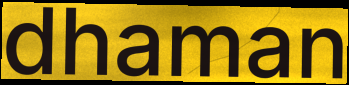
dhaman